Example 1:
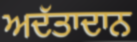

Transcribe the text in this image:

ਅਦੱਤਾਦਾਨ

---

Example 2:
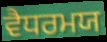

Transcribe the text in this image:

ਵੈਧਰਮਯ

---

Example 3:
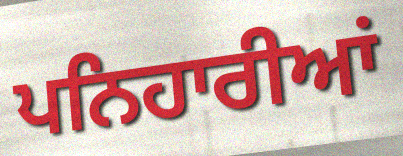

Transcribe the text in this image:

ਪਨਿਹਾਰੀਆਂ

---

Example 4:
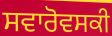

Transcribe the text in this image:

ਸਵਾਰੋਵਸਕੀ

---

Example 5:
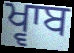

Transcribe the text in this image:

ਖ੍ਵਾਬ